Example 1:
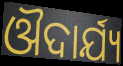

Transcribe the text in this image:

ଔଦାର୍ଯ୍ୟ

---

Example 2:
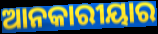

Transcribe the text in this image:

ଆନକାରୀୟାର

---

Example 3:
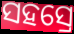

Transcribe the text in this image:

ସହସ୍ରେ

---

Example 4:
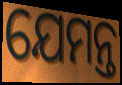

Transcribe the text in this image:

ଯେମନ୍ତ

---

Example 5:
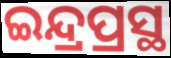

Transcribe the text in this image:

ଇନ୍ଦ୍ରପ୍ରସ୍ଥ